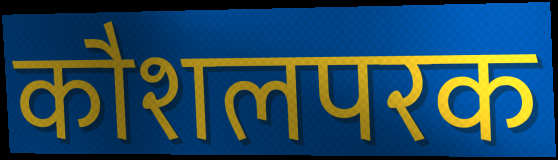
कौशलपरक